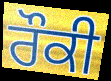
ਰੌਕੀ